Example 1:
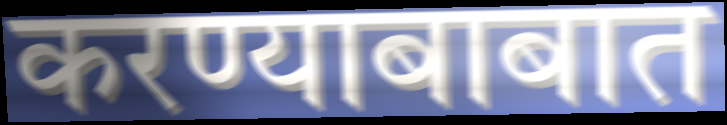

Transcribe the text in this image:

करण्याबाबात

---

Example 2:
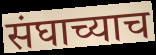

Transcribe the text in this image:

संघाच्याच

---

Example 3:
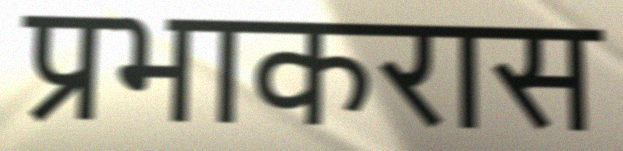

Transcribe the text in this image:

प्रभाकरास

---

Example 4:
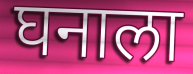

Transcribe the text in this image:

घनाला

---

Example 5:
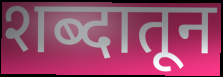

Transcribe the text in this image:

शब्दातून